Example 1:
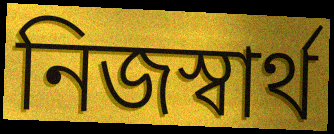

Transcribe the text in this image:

নিজস্বার্থ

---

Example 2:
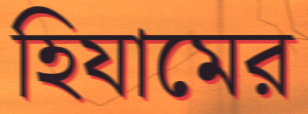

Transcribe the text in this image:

হিযামের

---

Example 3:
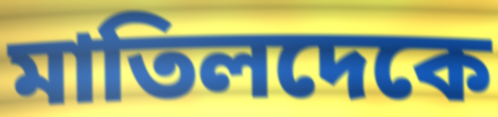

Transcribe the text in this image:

মাতিলদেকে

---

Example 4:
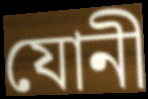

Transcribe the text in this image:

যোনী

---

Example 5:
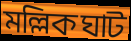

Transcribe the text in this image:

মল্লিকঘাট